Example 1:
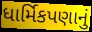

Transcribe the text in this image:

ધાર્મિકપણાનું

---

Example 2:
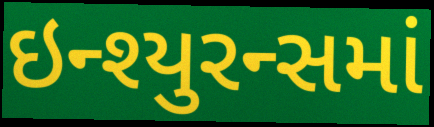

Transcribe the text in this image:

ઇન્શ્યુરન્સમાં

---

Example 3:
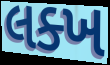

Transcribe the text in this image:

લક્ખ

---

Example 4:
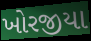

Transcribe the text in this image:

ખોરજીયા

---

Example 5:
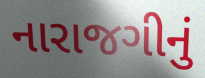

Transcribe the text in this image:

નારાજગીનું